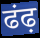
ढंढ़